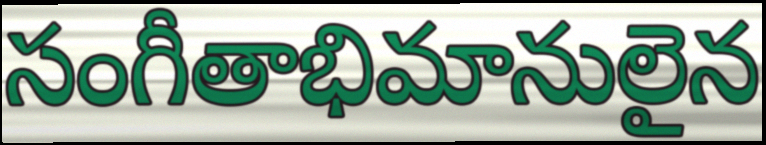
సంగీతాభిమానులైన